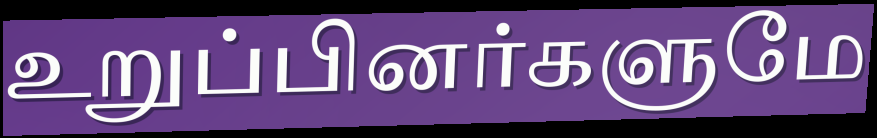
உறுப்பினர்களுமே